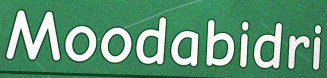
Moodabidri